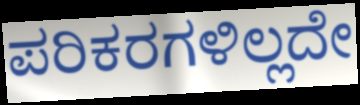
ಪರಿಕರಗಳಿಲ್ಲದೇ